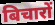
बिचारों